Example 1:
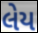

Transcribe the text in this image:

લેય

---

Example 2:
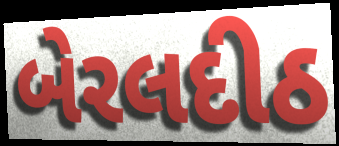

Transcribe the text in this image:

બેરલદીઠ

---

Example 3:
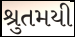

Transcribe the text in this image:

શ્રુતમયી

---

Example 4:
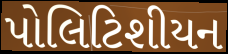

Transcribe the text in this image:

પોલિટિશીયન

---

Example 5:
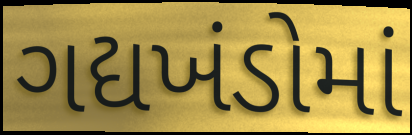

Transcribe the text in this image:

ગદ્યખંડોમાં